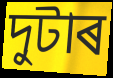
দুটাৰ